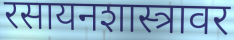
रसायनशास्त्रावर